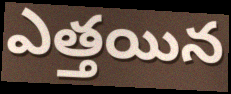
ఎత్తయిన